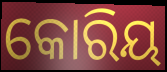
କୋରିୟ